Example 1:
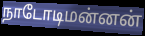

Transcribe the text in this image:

நாடோடிமன்னன்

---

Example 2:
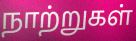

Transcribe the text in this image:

நாற்றுகள்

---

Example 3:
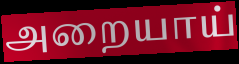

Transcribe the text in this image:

அறையாய்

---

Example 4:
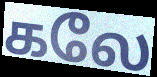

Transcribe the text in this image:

கலே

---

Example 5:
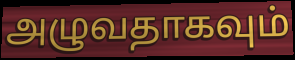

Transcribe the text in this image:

அழுவதாகவும்